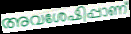
അവശേഷിപ്പാണ്